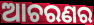
ଆଚରଣର